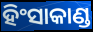
ହିଂସାକାଣ୍ଡ